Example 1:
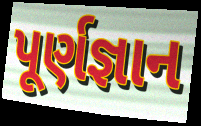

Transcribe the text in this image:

પૂર્ણજ્ઞાન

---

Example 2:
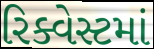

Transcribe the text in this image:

રિક્વેસ્ટમાં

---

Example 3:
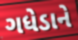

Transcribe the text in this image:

ગધેડાને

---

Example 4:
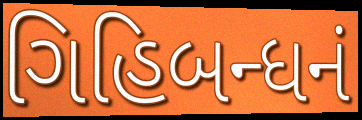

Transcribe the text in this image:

ગિહિબન્ધનં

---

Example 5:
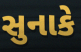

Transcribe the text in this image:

સુનાકે